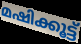
മഷിക്കൂട്ട്